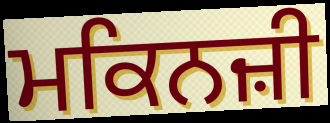
ਮਕਿਨਜ਼ੀ